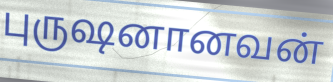
புருஷனானவன்